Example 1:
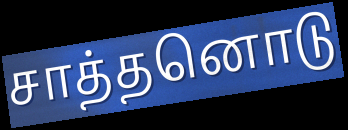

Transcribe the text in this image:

சாத்தனொடு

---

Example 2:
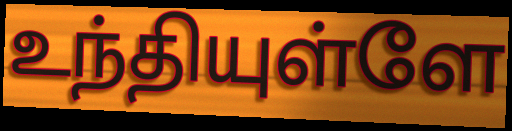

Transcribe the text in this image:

உந்தியுள்ளே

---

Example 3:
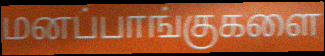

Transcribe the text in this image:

மனப்பாங்குகளை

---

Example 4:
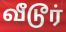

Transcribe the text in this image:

வீடூர்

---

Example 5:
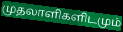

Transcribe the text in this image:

முதலாளிகளிடமும்